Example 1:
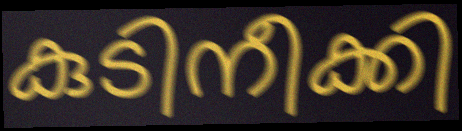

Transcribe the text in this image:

കുടിനീക്കി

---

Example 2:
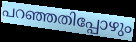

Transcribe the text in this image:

പറഞ്ഞതിപ്പോഴും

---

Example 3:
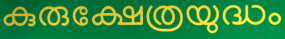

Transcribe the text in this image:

കുരുക്ഷേത്രയുദ്ധം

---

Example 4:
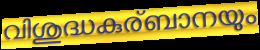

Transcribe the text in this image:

വിശുദ്ധകുര്ബാനയും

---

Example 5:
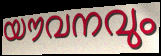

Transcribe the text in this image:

യൗവനവും